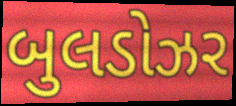
બુલડોઝર